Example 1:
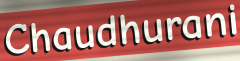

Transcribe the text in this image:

Chaudhurani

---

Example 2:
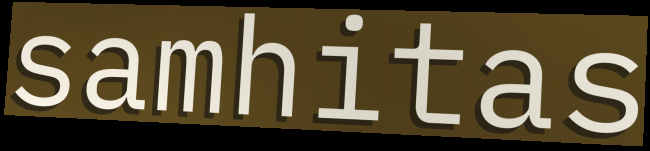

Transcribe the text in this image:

samhitas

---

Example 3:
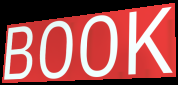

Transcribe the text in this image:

BOOK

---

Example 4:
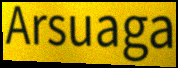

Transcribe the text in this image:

Arsuaga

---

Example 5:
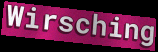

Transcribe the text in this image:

Wirsching